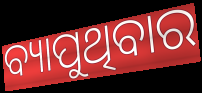
ବ୍ୟାପୁଥିବାର